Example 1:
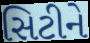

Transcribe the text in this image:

સિટીને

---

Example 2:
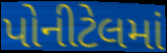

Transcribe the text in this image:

પોનીટેલમાં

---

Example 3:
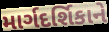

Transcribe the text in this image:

માર્ગદર્શિકાને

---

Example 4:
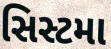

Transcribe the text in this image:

સિસ્ટમા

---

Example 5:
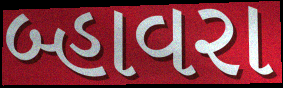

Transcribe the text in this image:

બ્હાવરા